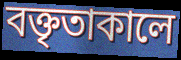
বক্তৃতাকালে